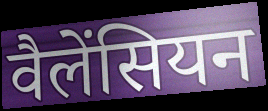
वैलेंसियन